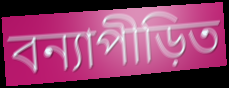
বন্যাপীড়িত